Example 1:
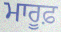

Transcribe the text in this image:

ਮਾਰੂਫ਼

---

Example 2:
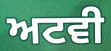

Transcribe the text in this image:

ਅਟਵੀ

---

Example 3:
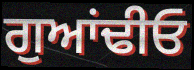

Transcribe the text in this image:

ਗੁਆਂਢੀਓ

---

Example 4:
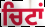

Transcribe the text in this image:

ਚਿਟਾਂ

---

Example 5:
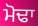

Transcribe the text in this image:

ਮੋਢਾ